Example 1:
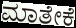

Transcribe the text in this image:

ಮಾತೇಕೆ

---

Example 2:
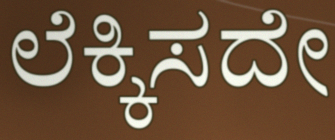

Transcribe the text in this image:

ಲೆಕ್ಕಿಸದೇ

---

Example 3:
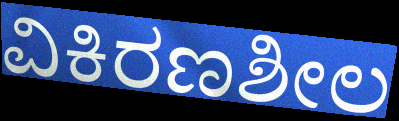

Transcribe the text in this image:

ವಿಕಿರಣಶೀಲ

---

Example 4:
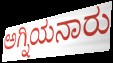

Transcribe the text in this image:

ಅಗ್ನಿಯನಾರು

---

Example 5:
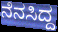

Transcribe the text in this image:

ನೆನಸಿದ್ದ